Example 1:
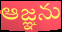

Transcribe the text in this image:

ఆజ్ఞను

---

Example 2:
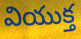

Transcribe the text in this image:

వియుక్త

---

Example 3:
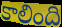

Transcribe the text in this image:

కాలింది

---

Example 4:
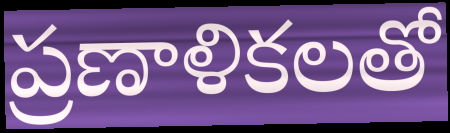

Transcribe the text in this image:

ప్రణాళికలతో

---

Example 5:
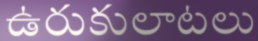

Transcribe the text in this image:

ఉరుకులాటలు